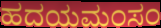
ಹದಯಮಂಸಂ